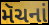
મૅચનાં